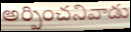
అర్పించనివాడు